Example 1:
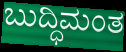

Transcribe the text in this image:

ಬುದ್ಧಿಮಂತ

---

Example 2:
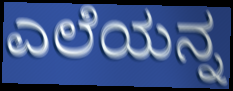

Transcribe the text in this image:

ಎಲೆಯನ್ನ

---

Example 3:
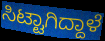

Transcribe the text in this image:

ಸಿಟ್ಟಾಗಿದ್ದಾಳೆ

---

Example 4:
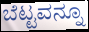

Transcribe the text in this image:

ಬೆಟ್ಟವನ್ನೂ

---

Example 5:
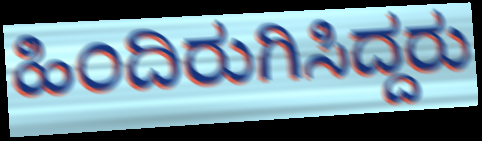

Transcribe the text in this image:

ಹಿಂದಿರುಗಿಸಿದ್ದರು